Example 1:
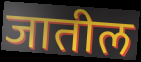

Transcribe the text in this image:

जातील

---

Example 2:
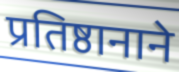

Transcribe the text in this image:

प्रतिष्ठानाने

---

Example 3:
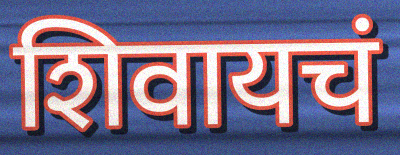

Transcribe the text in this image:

शिवायचं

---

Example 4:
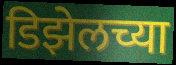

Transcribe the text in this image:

डिझेलच्या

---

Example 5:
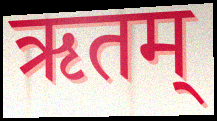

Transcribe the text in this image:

ऋतम्